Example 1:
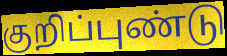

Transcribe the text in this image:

குறிப்புண்டு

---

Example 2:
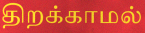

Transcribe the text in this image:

திறக்காமல்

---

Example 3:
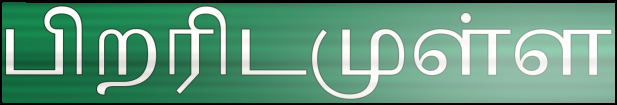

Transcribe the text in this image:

பிறரிடமுள்ள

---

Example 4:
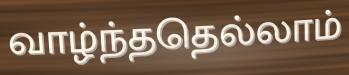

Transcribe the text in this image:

வாழ்ந்ததெல்லாம்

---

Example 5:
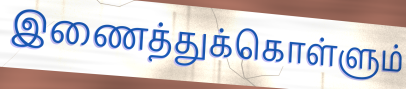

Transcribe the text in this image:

இணைத்துக்கொள்ளும்